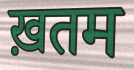
ख़तम